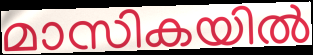
മാസികയിൽ